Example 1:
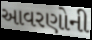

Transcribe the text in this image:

આવરણોની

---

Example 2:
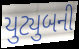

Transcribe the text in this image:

યુટ્યુબની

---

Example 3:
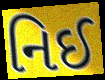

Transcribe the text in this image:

નિઈ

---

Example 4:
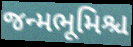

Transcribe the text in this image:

જન્મભૂમિશ્ચ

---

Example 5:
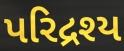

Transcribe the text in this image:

પરિદ્રશ્ય